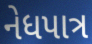
નેધપાત્ર